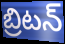
బ్రిటన్